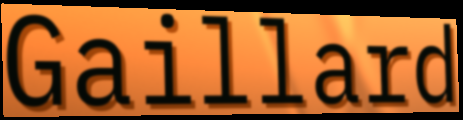
Gaillard